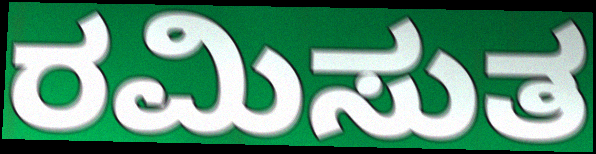
ರಮಿಸುತ